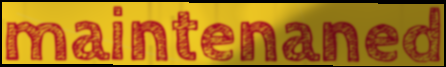
maintenaned